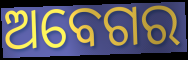
ଅବେଗର